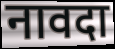
नावदा